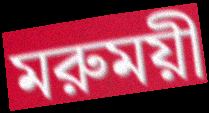
মরুময়ী